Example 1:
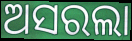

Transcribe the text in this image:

ଅସରଲା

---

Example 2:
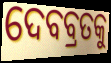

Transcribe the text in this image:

ଦେବବ୍ରତକୁ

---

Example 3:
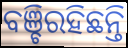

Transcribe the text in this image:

ବଞ୍ଚିରହିଛନ୍ତି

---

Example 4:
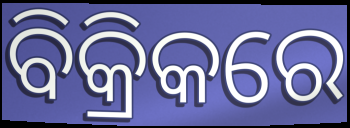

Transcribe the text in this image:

ବିକ୍ରିକରେ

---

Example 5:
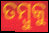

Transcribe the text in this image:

ତମ୍ବୁକୁ